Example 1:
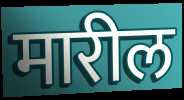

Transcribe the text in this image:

मारील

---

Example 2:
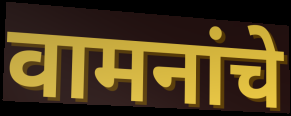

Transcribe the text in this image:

वामनांचे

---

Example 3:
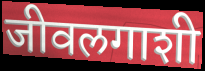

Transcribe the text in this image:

जीवलगाशी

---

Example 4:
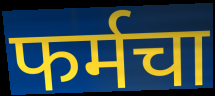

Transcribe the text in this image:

फर्मचा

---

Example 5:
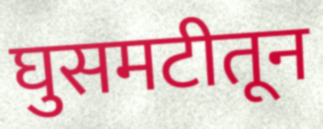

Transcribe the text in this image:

घुसमटीतून